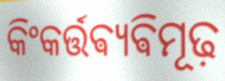
କିଂକର୍ତ୍ତଵ୍ଯଵିମୂଢ଼